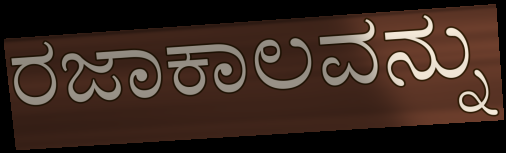
ರಜಾಕಾಲವನ್ನು